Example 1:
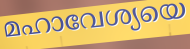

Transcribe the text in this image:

മഹാവേശ്യയെ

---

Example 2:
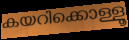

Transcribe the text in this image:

കയറിക്കൊള്ളൂ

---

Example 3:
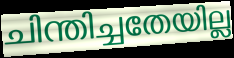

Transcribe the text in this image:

ചിന്തിച്ചതേയില്ല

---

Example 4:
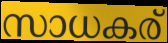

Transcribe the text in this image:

സാധകര്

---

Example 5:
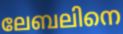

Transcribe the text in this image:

ലേബലിനെ